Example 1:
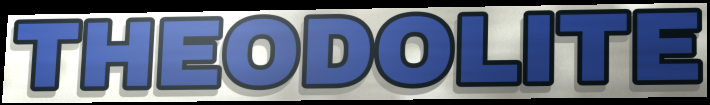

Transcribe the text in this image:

THEODOLITE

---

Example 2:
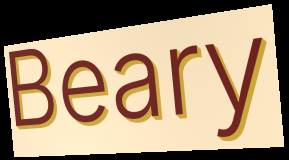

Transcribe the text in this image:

Beary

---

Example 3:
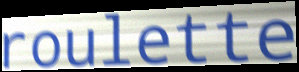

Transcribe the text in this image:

roulette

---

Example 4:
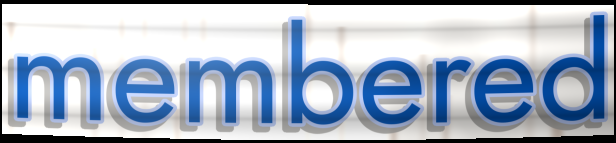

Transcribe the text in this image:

membered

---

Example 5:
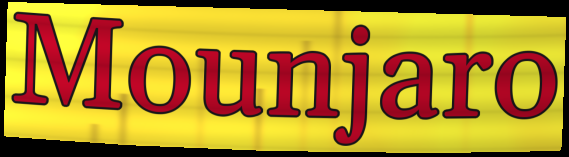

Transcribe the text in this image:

Mounjaro